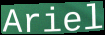
Ariel